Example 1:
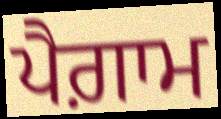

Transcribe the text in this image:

ਪੈਗ਼ਾਮ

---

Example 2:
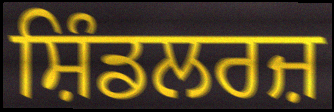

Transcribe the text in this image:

ਸ਼ਿੰਡਲਰਜ਼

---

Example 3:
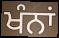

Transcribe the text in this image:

ਖੰਨਾਂ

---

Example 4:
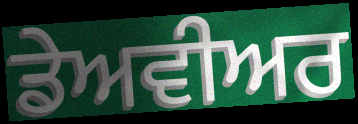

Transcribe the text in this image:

ਡੇਅਵੀਅਰ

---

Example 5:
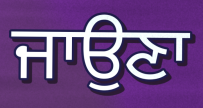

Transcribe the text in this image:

ਜਾਉਣਾ